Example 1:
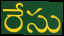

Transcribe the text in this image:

రేసు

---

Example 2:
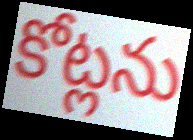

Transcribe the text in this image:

కోట్లను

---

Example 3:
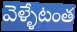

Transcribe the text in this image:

వెళ్ళేటంత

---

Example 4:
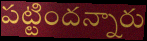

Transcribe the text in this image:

పట్టిందన్నారు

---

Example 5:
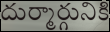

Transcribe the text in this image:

దుర్మార్గునికి